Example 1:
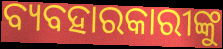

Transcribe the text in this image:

ବ୍ୟବହାରକାରୀଙ୍କୁ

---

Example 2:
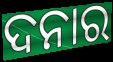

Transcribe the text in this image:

ଦନାର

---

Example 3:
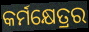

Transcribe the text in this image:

କର୍ମକ୍ଷେତ୍ରର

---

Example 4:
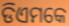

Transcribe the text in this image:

ଡିଏମକେ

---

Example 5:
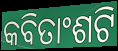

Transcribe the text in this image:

କବିତାଂଶଟି